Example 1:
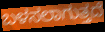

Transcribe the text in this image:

ಬಳಸಲಾಗುತ್ತದೆ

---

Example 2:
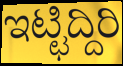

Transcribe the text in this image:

ಇಟ್ಟಿದ್ದಿರಿ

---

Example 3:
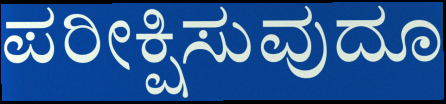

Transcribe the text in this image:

ಪರೀಕ್ಷಿಸುವುದೂ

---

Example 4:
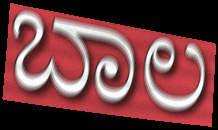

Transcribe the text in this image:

ಬಾಲ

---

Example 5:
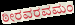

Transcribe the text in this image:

ಠೀರವರವಮಂ